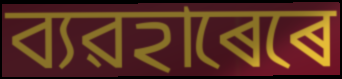
ব্যৱহাৰেৰে